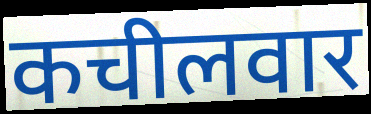
कचीलवार